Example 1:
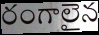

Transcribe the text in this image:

రంగాలైన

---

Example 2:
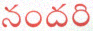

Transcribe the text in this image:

నందరి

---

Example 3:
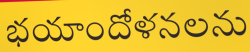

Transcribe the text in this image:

భయాందోళనలను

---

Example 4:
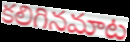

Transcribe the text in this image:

కలిగినమాట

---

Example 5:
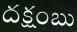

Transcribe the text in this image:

దక్షంబు